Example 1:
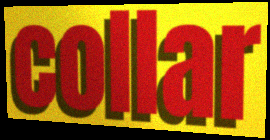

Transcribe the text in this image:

collar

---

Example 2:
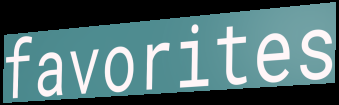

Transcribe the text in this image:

favorites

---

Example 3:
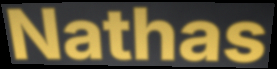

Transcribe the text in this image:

Nathas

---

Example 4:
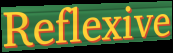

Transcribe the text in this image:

Reflexive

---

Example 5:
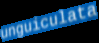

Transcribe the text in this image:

unguiculata